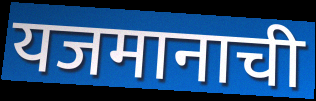
यजमानाची